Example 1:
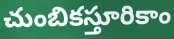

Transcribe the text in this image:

చుంబికస్తూరికాం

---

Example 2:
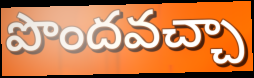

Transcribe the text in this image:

పొందవచ్చా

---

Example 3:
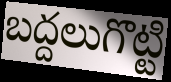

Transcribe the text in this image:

బద్దలుగొట్టి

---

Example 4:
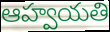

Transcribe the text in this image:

ఆహ్వయతి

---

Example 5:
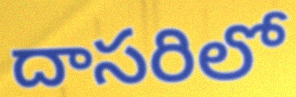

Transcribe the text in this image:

దాసరిలో